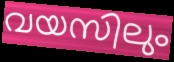
വയസിലും